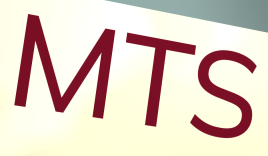
MTS